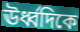
ঊর্ধ্বদিকে